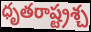
ధృతరాష్ట్రశ్చ